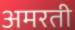
अमरती